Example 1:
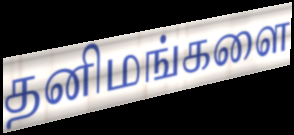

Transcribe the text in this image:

தனிமங்களை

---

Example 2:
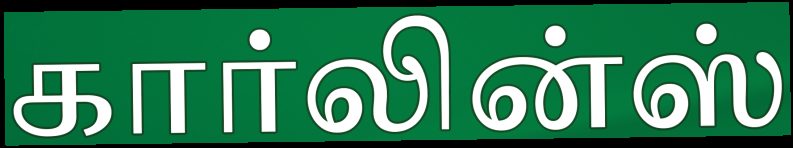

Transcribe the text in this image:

கார்லின்ஸ்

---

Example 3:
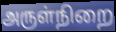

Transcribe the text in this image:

அருள்நிறை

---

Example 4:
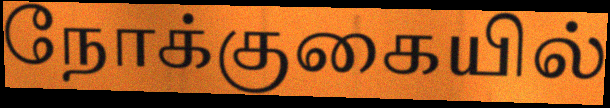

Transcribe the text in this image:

நோக்குகையில்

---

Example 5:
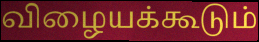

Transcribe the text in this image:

விழையக்கூடும்